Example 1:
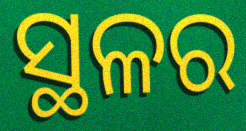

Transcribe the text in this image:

ସ୍ଥଳର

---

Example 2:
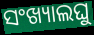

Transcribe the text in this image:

ସଂଖ୍ୟାଲଘୁ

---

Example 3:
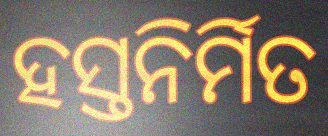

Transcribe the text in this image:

ହସ୍ତନିର୍ମିତ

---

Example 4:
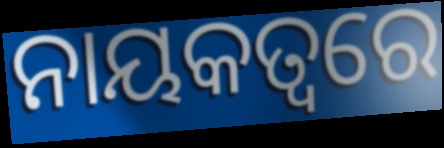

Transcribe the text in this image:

ନାୟକତ୍ବରେ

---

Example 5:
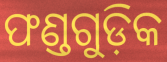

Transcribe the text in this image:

ଫଣ୍ଡଗୁଡ଼ିକ